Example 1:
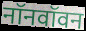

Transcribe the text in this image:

नॉनवॉवन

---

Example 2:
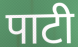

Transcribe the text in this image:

पाटी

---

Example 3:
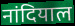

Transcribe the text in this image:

नांदियाल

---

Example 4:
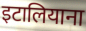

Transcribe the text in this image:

इटालियाना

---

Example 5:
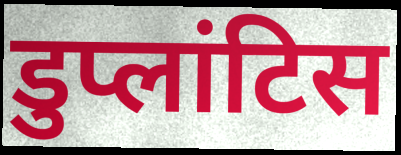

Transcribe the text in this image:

डुप्लांटिस